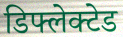
डिफ्लेक्टेड